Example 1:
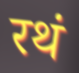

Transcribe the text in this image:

रथं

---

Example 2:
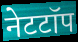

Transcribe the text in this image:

नेटटॉप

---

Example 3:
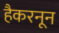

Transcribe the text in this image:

हैकरनून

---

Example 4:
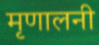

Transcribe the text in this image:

मृणालनी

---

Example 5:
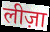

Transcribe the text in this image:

लीज़ा